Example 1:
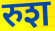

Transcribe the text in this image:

रुश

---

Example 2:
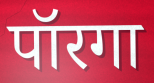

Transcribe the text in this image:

पॉरगा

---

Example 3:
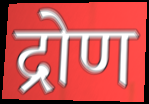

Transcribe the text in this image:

द्रोण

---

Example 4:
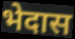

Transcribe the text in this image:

भेदास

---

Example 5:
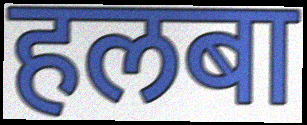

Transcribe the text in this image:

हलबा